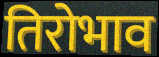
तिरोभाव